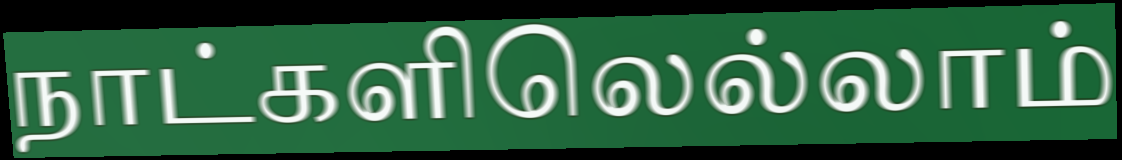
நாட்களிலெல்லாம்